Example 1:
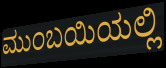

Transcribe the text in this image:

ಮುಂಬಯಿಯಲ್ಲಿ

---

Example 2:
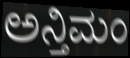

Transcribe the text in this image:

ಅನ್ತಿಮಂ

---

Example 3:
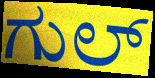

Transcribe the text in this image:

ಗುಲ್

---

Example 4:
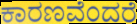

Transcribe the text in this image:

ಕಾರಣವೆಂದರೆ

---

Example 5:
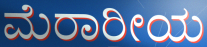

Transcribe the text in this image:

ಮೆರಾರೀಯ